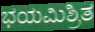
ಭಯಮಿಶ್ರಿತ